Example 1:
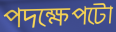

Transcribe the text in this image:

পদক্ষেপটো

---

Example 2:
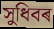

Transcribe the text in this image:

সুধিবৰ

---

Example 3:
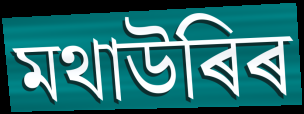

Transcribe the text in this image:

মথাউৰিৰ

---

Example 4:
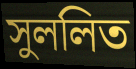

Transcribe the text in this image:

সুললিত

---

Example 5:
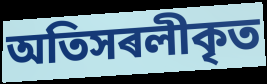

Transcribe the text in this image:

অতিসৰলীকৃত